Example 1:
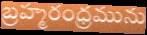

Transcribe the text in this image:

బ్రహ్మరంధ్రమును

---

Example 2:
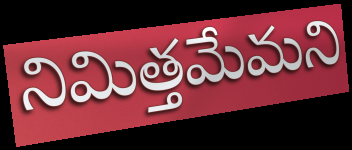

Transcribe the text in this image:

నిమిత్తమేమని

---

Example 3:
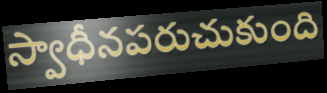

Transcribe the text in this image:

స్వాధీనపరుచుకుంది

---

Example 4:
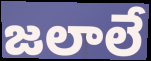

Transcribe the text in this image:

జలాలే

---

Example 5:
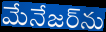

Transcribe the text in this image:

మేనేజర్‌ను